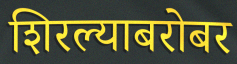
शिरल्याबरोबर